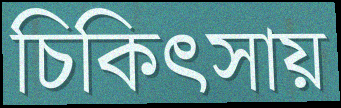
চিকিৎসায়